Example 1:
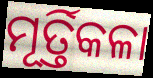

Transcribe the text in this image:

ମୂର୍ତ୍ତିକଳା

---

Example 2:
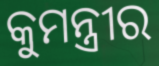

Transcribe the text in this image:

କୁମନ୍ତ୍ରୀର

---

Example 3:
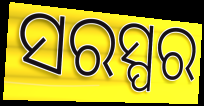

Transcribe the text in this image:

ସରସ୍ପର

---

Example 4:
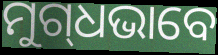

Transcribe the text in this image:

ମୁଗ୍‌ଧଭାବେ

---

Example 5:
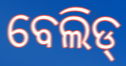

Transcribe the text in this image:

ବେଲିଡ୍